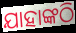
ଯାହାଙ୍କଠି